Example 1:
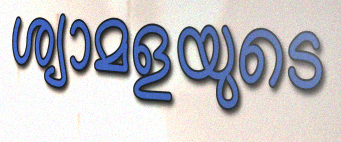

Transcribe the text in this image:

ശ്യാമളയുടെ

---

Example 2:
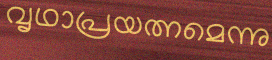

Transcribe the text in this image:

വൃഥാപ്രയത്നമെന്നു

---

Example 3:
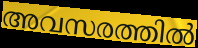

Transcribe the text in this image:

അവസരത്തിൽ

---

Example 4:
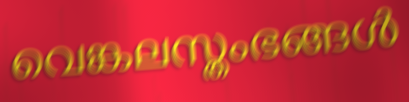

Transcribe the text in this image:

വെങ്കലസ്തംഭങ്ങൾ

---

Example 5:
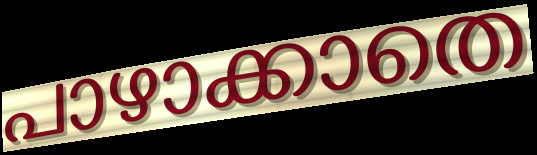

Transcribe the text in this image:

പാഴാക്കാതെ